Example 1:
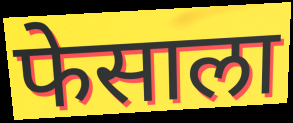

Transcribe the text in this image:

फेसाला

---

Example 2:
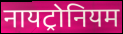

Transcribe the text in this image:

नायट्रोनियम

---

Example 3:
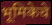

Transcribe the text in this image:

भूमिकेचे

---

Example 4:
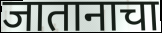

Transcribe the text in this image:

जातानाचा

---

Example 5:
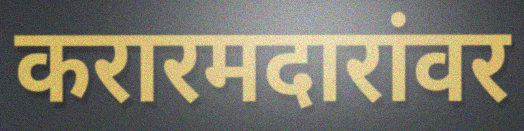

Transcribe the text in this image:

करारमदारांवर